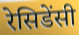
रेसिडेंसी